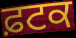
ਫ਼ਟਕ